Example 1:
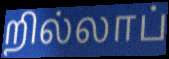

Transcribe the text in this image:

றில்லாப்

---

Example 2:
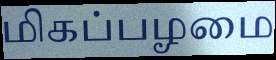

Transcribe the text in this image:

மிகப்பழமை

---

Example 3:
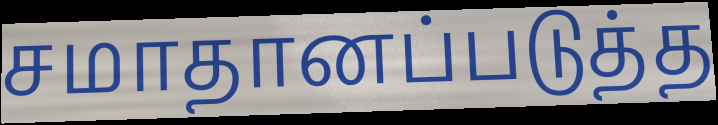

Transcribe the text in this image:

சமாதானப்படுத்த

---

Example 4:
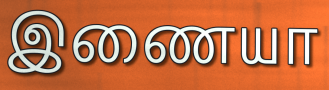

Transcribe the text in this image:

இணையா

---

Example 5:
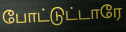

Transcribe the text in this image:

போட்டுட்டாரே